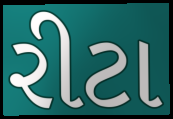
રીટા